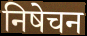
निषेचन